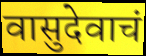
वासुदेवाचं